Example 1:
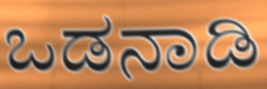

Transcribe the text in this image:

ಒಡನಾಡಿ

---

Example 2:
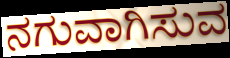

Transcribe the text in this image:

ನಗುವಾಗಿಸುವ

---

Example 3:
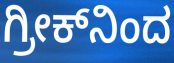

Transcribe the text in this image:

ಗ್ರೀಕ್‌ನಿಂದ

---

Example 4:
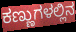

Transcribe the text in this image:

ಕಣ್ಣುಗಳಲ್ಲಿನ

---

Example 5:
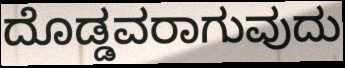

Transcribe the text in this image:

ದೊಡ್ಡವರಾಗುವುದು